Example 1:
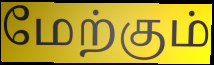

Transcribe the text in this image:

மேற்கும்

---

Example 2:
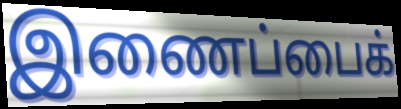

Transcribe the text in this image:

இணைப்பைக்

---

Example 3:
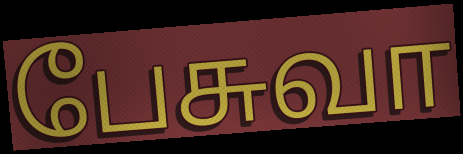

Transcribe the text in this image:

பேசுவா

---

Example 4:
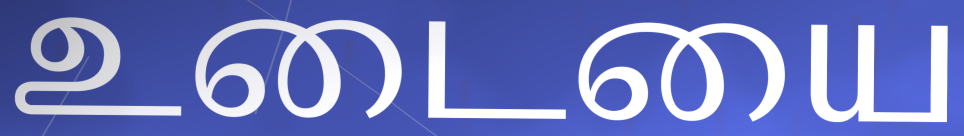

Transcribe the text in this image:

உடையை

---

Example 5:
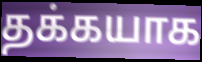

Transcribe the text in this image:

தக்கயாக